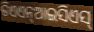
ଡିଏଏନ୍ଆଇସିଏସ୍